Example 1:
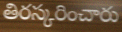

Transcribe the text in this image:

తిరస్కరించారు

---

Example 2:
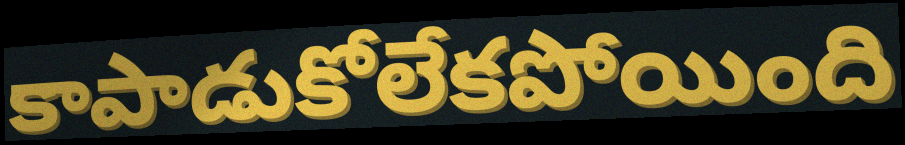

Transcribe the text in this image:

కాపాడుకోలేకపోయింది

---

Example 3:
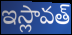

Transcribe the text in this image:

ఇస్లావత్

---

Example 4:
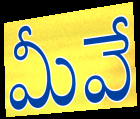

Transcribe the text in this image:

మీవే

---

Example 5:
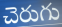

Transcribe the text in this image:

చెరుగు